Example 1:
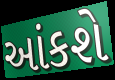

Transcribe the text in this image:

આંકશે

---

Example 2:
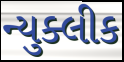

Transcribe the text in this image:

ન્યુક્લીક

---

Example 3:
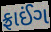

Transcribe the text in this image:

ફ્રાઈંગ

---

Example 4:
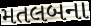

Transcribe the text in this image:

મતલબના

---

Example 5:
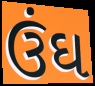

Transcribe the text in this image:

ઉંઘ